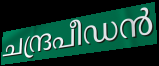
ചന്ദ്രപീഡൻ